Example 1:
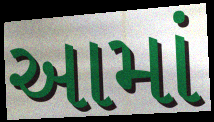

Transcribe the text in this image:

આમાં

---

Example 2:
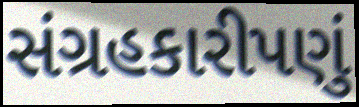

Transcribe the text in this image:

સંગ્રહકારીપણું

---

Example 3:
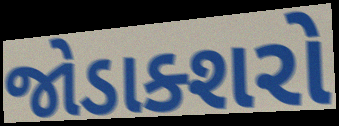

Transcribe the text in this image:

જોડાક્શરો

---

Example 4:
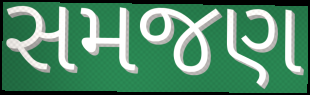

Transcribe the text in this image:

સમજણ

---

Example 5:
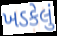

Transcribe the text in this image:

ખડકેલું